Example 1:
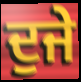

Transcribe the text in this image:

ਦੁਜੇ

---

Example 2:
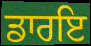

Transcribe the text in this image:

ਡਾਰਇ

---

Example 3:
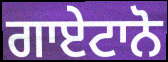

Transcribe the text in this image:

ਗਾਏਟਾਨੋ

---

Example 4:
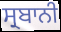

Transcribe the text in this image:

ਸ੍ਰਬਾਨੀ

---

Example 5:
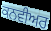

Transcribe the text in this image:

ਕਨਵੀਅਰ